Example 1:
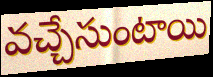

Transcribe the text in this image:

వచ్చేసుంటాయి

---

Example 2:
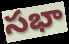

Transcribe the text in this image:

సభా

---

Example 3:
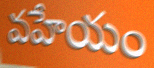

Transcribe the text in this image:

వహేయం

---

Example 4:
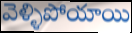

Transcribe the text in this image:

వెళ్ళిపోయాయి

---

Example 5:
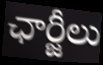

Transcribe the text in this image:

ఛార్జీలు